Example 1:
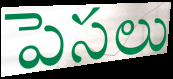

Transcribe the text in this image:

పెసలు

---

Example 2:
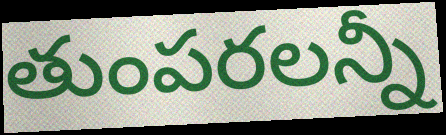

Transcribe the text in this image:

తుంపరలన్నీ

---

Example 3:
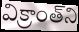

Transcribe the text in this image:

విక్రాంత్‌ని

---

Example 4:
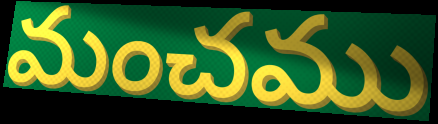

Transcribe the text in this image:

మంచము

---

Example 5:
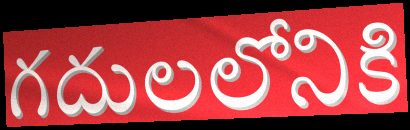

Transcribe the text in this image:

గదులలోనికి